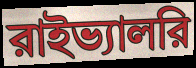
রাইভ্যালরি